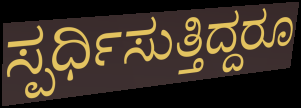
ಸ್ಪರ್ಧಿಸುತ್ತಿದ್ದರೂ